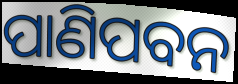
ପାଣିପବନ